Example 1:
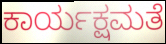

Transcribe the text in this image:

ಕಾರ್ಯಕ್ಷಮತೆ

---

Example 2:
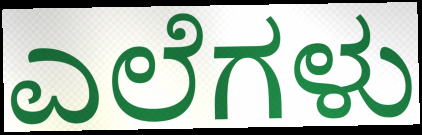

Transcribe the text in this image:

ಎಲೆಗಳು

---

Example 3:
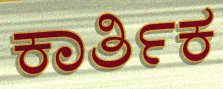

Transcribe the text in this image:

ಕಾರ್ತಿಕ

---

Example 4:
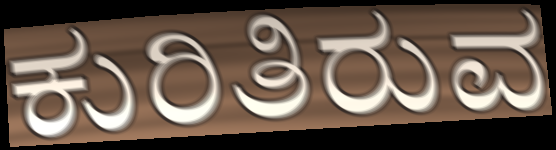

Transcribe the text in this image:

ಕುರಿತಿರುವ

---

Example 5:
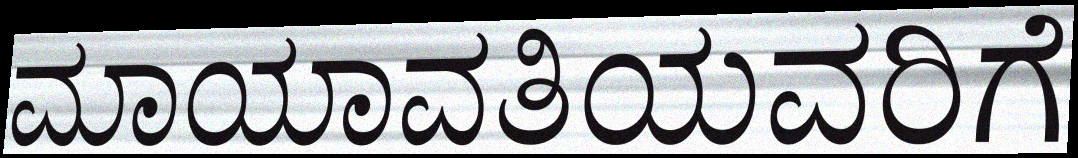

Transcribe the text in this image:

ಮಾಯಾವತಿಯವರಿಗೆ